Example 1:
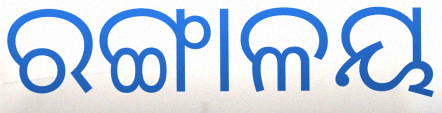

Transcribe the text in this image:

ରଙ୍ଗାଳୟ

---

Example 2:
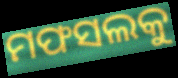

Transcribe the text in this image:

ମଫସଲକୁ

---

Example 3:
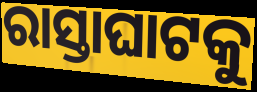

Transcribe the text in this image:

ରାସ୍ତାଘାଟକୁ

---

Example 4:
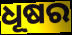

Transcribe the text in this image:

ଧୂଷର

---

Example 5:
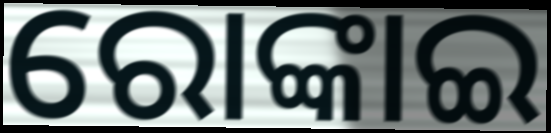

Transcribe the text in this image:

ରୋଙ୍କାଇ